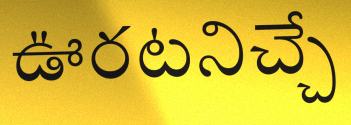
ఊరటనిచ్చే